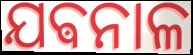
ଯଵନାଳ